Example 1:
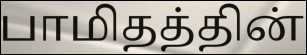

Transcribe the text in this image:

பாமிதத்தின்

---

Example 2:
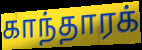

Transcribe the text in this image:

காந்தாரக்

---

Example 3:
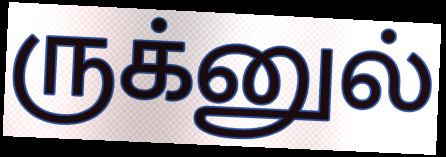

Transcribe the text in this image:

ருக்னுல்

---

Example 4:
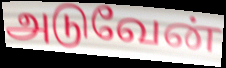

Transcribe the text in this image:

அடுவேன்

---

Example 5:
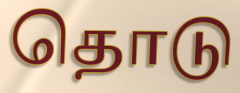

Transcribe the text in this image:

தொடு